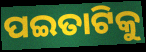
ପଇତାଟିକୁ